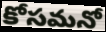
కోసమనో